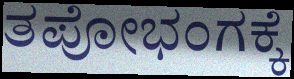
ತಪೋಭಂಗಕ್ಕೆ